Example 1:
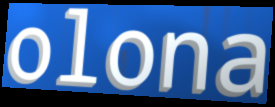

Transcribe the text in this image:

olona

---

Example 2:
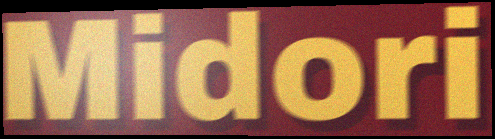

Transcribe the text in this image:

Midori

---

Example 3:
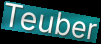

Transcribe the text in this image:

Teuber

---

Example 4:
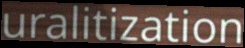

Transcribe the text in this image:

uralitization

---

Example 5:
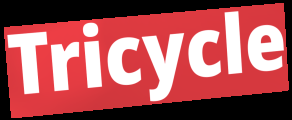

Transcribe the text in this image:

Tricycle